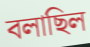
বলাছিল